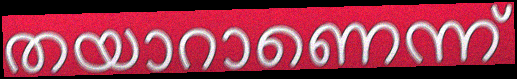
തയാറാണെന്ന്